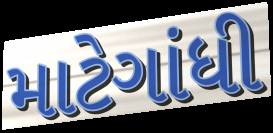
માટેગાંધી